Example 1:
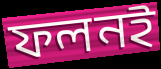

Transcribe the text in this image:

ফলনই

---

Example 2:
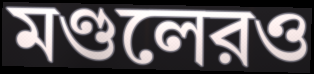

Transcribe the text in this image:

মণ্ডলেরও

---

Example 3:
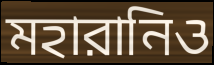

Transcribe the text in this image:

মহারানিও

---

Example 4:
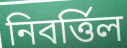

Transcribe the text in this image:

নিবর্ত্তিল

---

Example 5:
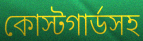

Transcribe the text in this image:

কোস্টগার্ডসহ